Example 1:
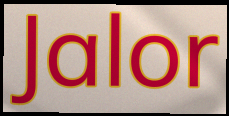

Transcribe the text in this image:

Jalor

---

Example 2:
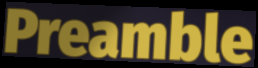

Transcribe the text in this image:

Preamble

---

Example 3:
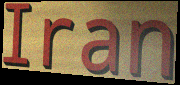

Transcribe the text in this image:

Iran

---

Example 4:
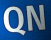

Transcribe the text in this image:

QN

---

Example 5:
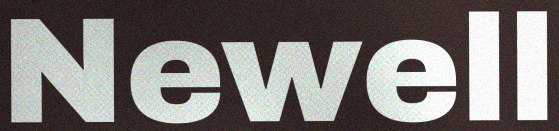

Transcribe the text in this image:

Newell